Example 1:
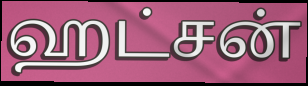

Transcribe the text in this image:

ஹட்சன்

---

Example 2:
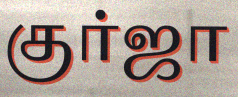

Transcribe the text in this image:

குர்ஜா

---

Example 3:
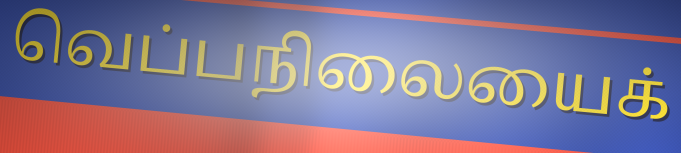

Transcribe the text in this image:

வெப்பநிலையைக்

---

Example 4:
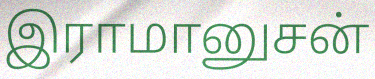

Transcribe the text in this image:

இராமானுசன்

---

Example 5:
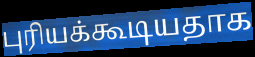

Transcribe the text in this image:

புரியக்கூடியதாக